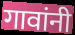
गावांनी